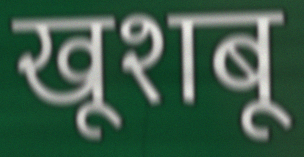
खूशबू